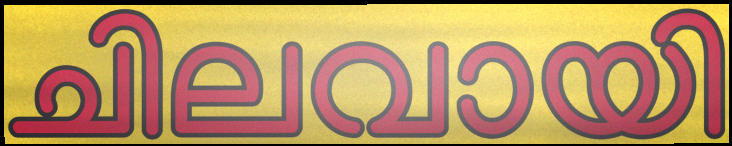
ചിലവായി